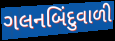
ગલનબિંદુવાળી